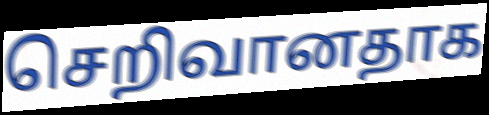
செறிவானதாக